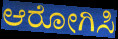
ಆರೋಗಿಸಿ